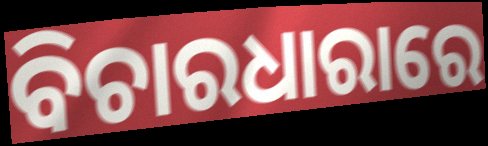
ବିଚାରଧାରାରେ